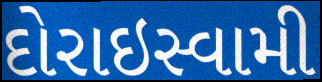
દોરાઇસ્વામી